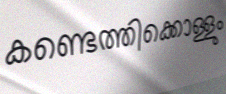
കണ്ടെത്തിക്കൊള്ളും